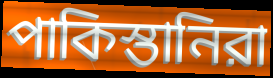
পাকিস্তানিরা